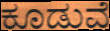
ಕೂಡುವೆ